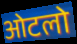
ओटलो